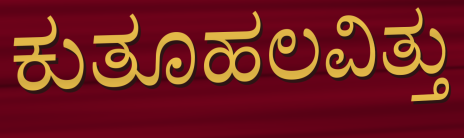
ಕುತೂಹಲವಿತ್ತು